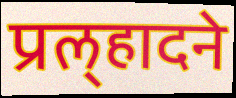
प्रल्हादने